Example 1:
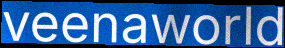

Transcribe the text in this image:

veenaworld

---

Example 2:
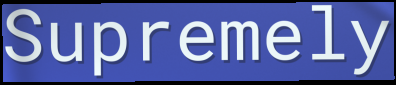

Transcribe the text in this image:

Supremely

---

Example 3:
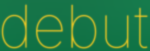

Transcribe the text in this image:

debut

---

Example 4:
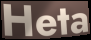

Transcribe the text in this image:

Heta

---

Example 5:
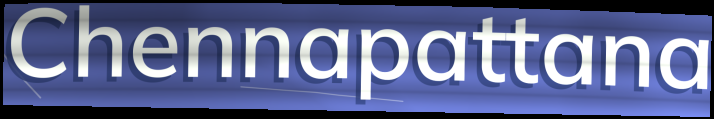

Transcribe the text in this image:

Chennapattana